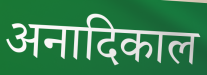
अनादिकाल